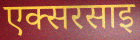
एक्सरसाइ